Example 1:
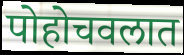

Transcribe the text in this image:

पोहोचवलात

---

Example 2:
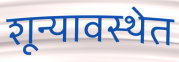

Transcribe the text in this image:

शून्यावस्थेत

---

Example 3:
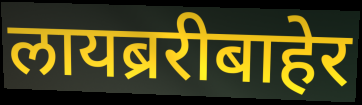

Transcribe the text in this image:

लायब्ररीबाहेर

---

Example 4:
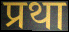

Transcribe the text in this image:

प्रथा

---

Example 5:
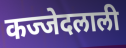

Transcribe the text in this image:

कज्जेदलाली